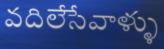
వదిలేసేవాళ్ళు